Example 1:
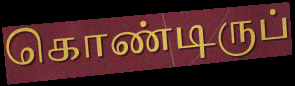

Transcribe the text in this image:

கொண்டிருப்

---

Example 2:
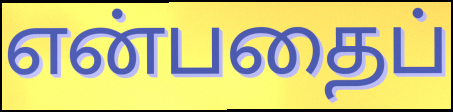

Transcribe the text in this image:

என்பதைப்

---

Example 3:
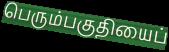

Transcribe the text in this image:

பெரும்பகுதியைப்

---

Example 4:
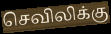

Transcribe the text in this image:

செவிலிக்கு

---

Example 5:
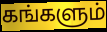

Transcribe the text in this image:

கங்களும்